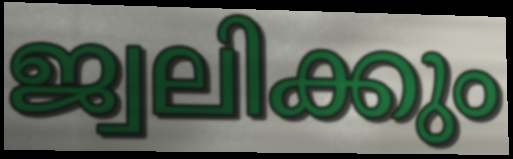
ജ്വലിക്കും